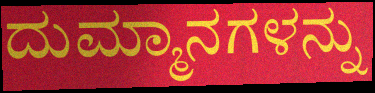
ದುಮ್ಮಾನಗಳನ್ನು